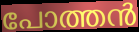
പോത്തൻ